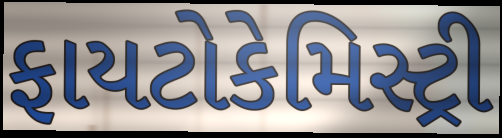
ફાયટોકેમિસ્ટ્રી